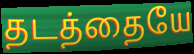
தடத்தையே